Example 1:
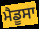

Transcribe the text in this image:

ਮੈਡੂਸਾ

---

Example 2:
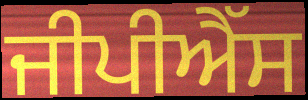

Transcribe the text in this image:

ਜੀਪੀਐੱਸ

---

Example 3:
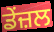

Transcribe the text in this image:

ਡੇਂਜ਼ਲ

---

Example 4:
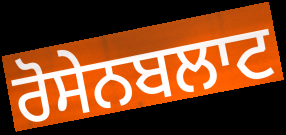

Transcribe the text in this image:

ਰੋਸੇਨਬਲਾਟ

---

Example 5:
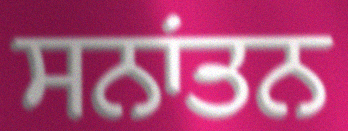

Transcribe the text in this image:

ਸਨਾਂਤਨ